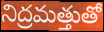
నిద్రమత్తుతో